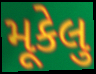
મૂકેલુ